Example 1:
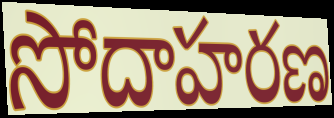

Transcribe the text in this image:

సోదాహరణ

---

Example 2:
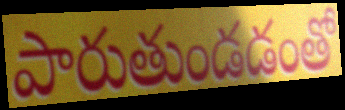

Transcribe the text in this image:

పారుతుండడంతో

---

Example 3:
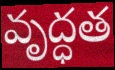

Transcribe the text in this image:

వృద్ధత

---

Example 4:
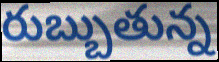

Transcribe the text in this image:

రుబ్బుతున్న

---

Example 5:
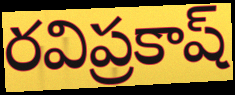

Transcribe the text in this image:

రవిప్రకాష్